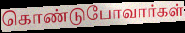
கொண்டுபோவார்கள்